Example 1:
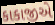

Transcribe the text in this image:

કાકાજીએ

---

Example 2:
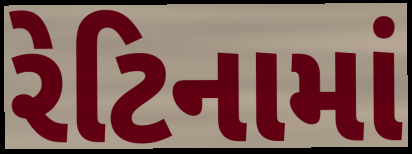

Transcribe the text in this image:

રેટિનામાં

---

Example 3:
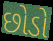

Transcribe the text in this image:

છોડો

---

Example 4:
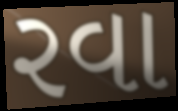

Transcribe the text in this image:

રવા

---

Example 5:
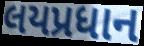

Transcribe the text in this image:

લયપ્રધાન